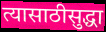
त्यासाठीसुद्धा